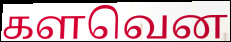
களவென